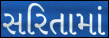
સરિતામાં